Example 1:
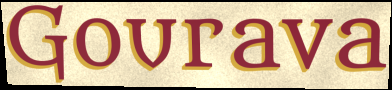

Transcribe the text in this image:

Gourava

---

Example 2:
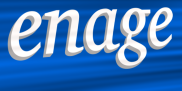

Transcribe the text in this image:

enage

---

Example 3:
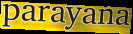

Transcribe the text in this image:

parayana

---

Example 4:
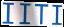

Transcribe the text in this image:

IITI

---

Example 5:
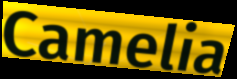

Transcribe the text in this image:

Camelia